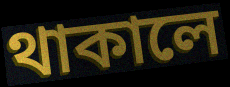
থাকালে